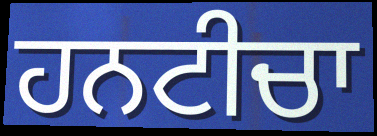
ਹਨਟੀਚਾ